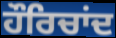
ਹੌਰਿਚਾਂਦ